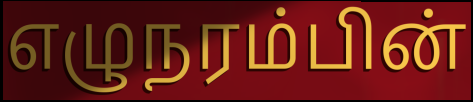
எழுநரம்பின்